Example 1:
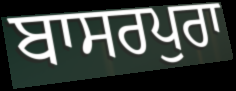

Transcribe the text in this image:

ਬਾਸਰਪੁਰਾ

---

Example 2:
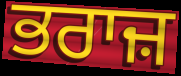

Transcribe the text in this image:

ਭਰਾਜ਼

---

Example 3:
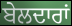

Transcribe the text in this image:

ਬੇਲਦਾਰਾਂ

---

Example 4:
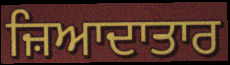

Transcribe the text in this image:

ਜ਼ਿਆਦਾਤਾਰ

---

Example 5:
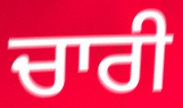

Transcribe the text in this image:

ਚਾਰੀ